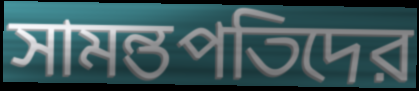
সামন্তপতিদের